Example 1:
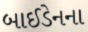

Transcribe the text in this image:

બાઈડેનના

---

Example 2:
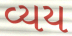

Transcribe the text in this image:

વ્યય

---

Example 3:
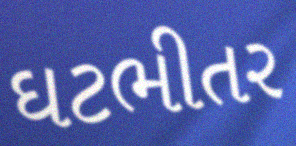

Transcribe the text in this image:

ઘટભીતર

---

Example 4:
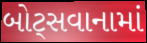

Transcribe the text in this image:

બોટ્સવાનામાં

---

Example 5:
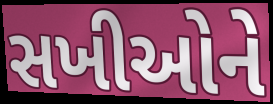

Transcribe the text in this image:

સખીઓને